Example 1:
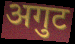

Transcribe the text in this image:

अगुट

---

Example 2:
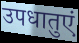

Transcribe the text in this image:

उपधातुएं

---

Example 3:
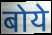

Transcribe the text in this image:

बोये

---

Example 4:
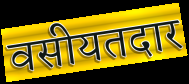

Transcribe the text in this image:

वसीयतदार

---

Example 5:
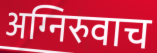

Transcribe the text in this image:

अग्निरुवाच